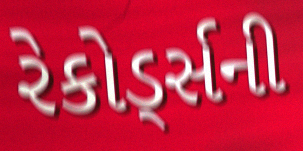
રેકોર્ડ્સની